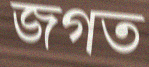
জগত